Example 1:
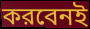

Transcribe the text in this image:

করবেনই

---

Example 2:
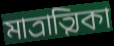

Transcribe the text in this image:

মাত্রাত্মিকা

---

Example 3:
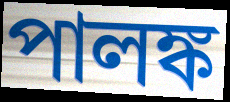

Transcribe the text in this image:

পালঙ্ক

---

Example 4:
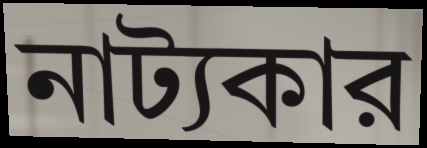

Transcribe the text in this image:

নাট্যকার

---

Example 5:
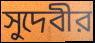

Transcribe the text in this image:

সুদেবীর